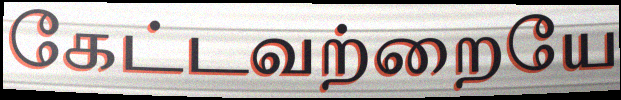
கேட்டவற்றையே